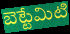
బెట్టేమిటి